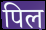
पिल